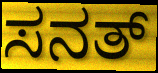
ಸನತ್